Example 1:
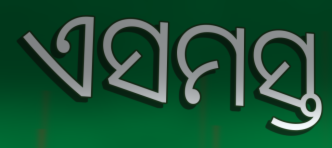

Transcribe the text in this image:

ଏସମସ୍ତ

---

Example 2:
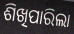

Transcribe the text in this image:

ଶିଖିପାରିଲା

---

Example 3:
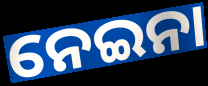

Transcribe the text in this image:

ନେଇନା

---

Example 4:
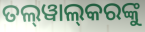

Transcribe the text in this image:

ତଲ୍‌ୱାଲ୍‌କରଙ୍କୁ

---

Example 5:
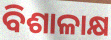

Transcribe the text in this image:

ବିଶାଳାକ୍ଷ